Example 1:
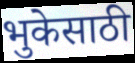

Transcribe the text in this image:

भुकेसाठी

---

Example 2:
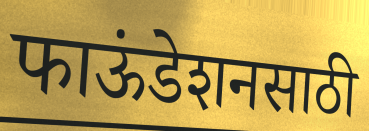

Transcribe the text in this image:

फाऊंडेशनसाठी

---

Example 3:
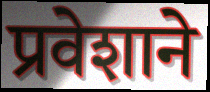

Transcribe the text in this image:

प्रवेशाने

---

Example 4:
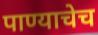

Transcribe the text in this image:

पाण्याचेच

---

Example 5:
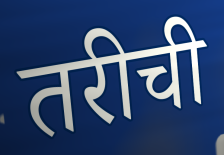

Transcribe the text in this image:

तरीची